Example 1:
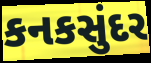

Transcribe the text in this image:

કનકસુંદર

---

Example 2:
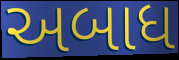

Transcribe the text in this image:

અબાધ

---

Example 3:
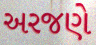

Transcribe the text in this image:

અરજણે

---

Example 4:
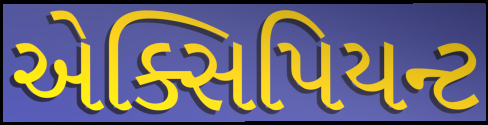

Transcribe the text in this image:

એક્સિપિયન્ટ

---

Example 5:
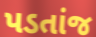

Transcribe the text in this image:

પડતાંજ